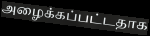
அழைக்கப்பட்டதாக